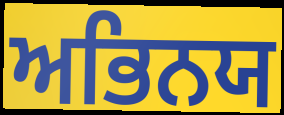
ਅਭਿਨਯ